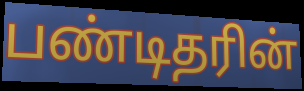
பண்டிதரின்